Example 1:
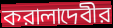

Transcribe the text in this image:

করালাদেবীর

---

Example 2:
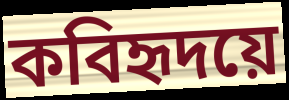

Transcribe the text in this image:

কবিহৃদয়ে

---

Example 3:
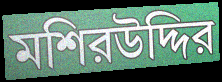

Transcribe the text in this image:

মশিরউদ্দির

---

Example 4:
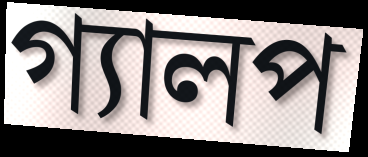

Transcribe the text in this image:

গ্যালপ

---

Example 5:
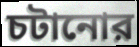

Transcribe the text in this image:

চটানোর